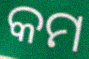
କମ